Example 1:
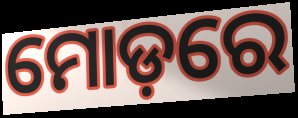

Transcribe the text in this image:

ମୋଡ଼ରେ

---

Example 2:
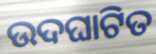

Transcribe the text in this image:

ଉଦଘାଟିତ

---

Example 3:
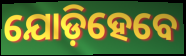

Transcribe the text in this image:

ଯୋଡ଼ିହେବେ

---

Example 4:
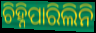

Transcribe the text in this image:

ଚିହ୍ନିପାରିଲିନି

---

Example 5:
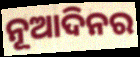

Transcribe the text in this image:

ନୂଆଦିନର